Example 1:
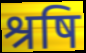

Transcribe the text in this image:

श्रषि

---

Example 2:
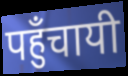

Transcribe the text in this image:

पहुँचायी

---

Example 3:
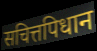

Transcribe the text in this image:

सचित्तपिधान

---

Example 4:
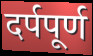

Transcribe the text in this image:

दर्पपूर्ण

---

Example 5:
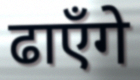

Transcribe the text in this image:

ढाएँगे